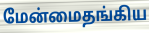
மேன்மைதங்கிய